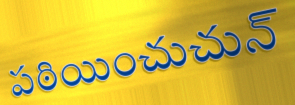
పఠియించుచున్